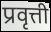
प्रवृत्ती